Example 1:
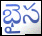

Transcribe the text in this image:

భైస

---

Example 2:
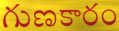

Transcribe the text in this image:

గుణకారం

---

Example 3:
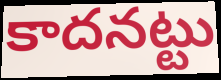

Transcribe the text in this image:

కాదనట్టు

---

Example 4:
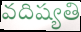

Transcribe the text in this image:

వదిష్యతి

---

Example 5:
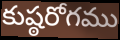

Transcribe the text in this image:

కుష్ఠరోగము